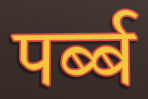
पर्ब्ब